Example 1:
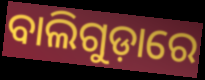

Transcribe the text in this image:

ବାଲିଗୁଡ଼ାରେ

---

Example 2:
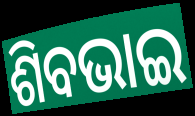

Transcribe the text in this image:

ଶିବଭାଇ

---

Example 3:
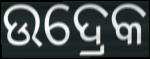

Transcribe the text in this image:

ଉଦ୍ରେକ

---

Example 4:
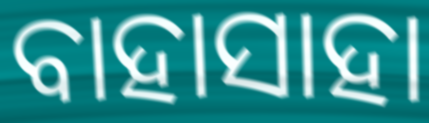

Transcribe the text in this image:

ବାହାସାହା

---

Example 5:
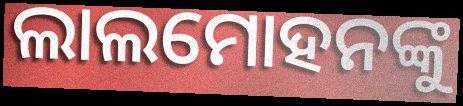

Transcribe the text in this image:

ଲାଲମୋହନଙ୍କୁ